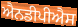
ਐਨਡੀਪੀਐਸ